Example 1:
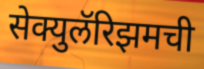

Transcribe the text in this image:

सेक्युलॅरिझमची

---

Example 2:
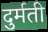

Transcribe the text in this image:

दुर्मती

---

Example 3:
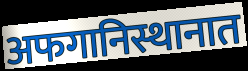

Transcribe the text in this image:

अफगानिस्थानात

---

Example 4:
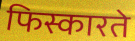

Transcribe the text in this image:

फिस्कारते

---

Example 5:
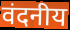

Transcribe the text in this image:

वंदनीय